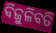
ବିଜୁଳିବତି